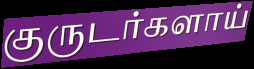
குருடர்களாய்